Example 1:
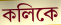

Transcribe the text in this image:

কলিকে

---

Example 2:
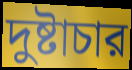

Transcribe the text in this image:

দুষ্টাচার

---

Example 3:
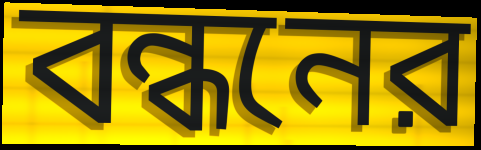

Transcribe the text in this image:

বন্ধনের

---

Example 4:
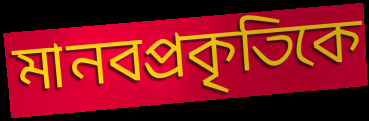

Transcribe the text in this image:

মানবপ্রকৃতিকে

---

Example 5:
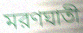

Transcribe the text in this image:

মরণঘাতী